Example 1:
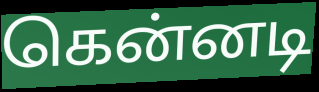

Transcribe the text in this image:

கென்னடி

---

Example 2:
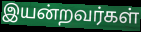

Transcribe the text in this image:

இயன்றவர்கள்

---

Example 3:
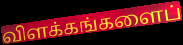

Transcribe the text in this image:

விளக்கங்களைப்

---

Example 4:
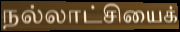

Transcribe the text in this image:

நல்லாட்சியைக்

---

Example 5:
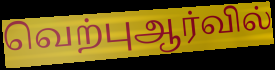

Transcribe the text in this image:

வெற்புஆர்வில்